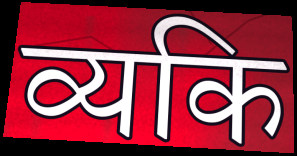
व्यकि